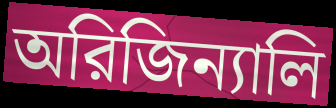
অরিজিন্যালি